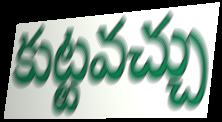
కుట్టవచ్చు